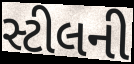
સ્ટીલની